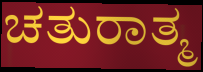
ಚತುರಾತ್ಮ